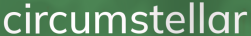
circumstellar